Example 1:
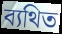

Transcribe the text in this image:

ব্যথিত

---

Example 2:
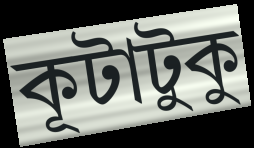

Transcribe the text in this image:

কূটাটুকু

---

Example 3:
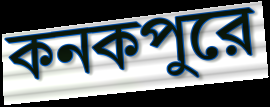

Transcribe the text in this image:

কনকপুরে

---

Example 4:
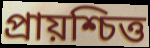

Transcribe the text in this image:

প্রায়শ্চিত্ত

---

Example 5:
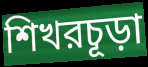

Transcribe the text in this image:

শিখরচূড়া